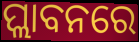
ପ୍ଲାବନରେ